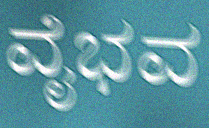
ವೈಭವ